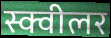
स्क्वीलर